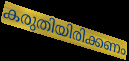
കരുതിയിരിക്കണം